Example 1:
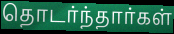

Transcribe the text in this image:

தொடர்ந்தார்கள்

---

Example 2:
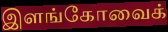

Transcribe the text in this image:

இளங்கோவைக்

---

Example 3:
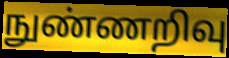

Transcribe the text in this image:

நுண்ணறிவு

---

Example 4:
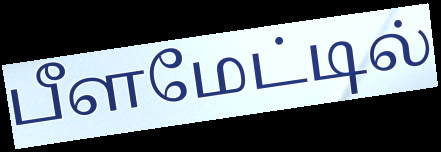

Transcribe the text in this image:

பீளமேட்டில்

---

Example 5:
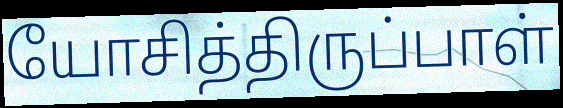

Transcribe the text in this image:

யோசித்திருப்பாள்